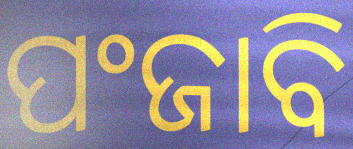
ପଂଜାବି